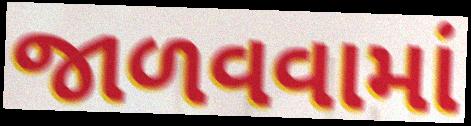
જાળવવામાં